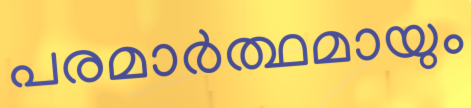
പരമാർത്ഥമായും